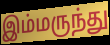
இம்மருந்து